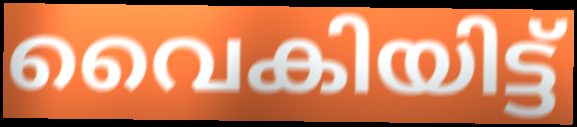
വൈകിയിട്ട്